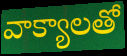
వాక్యాలతో